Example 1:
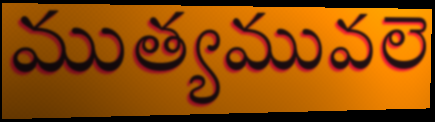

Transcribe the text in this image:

ముత్యమువలె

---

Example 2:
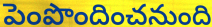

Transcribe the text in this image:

పెంపొందించనుంది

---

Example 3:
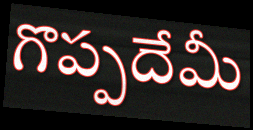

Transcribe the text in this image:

గొప్పదేమీ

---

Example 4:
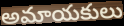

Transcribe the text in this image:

అమాయకులు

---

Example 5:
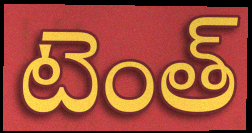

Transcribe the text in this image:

టెంత్